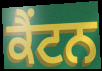
ਕੈਂਟਨ